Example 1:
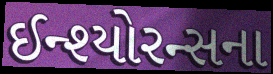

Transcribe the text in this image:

ઈન્શ્યોરન્સના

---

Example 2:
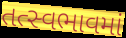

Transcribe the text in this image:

તત્સ્વભાવમાં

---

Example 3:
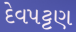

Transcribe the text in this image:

દેવપટ્ટણ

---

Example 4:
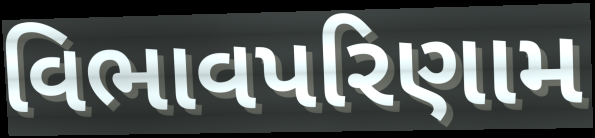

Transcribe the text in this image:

વિભાવપરિણામ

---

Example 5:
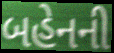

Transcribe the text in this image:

બહેનની